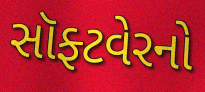
સૉફ્ટવેરનો